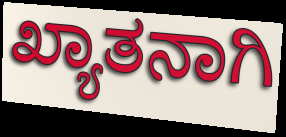
ಖ್ಯಾತನಾಗಿ